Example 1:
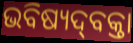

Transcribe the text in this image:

ଭବିଷ୍ୟଦ୍‌ବକ୍ତା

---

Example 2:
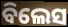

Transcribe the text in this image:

ବିଲେସ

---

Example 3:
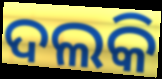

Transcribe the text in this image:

ଦଲକି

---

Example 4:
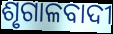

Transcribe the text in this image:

ଶୃଗାଳବାଦୀ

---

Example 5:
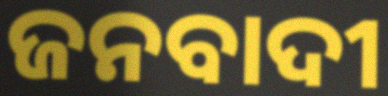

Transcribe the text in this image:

ଜନବାଦୀ